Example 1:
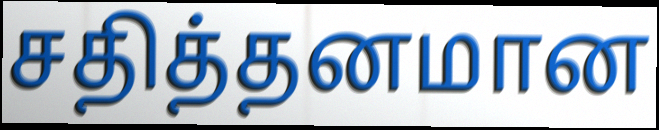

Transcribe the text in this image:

சதித்தனமான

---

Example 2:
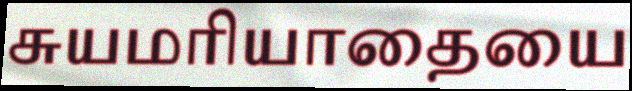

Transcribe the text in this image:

சுயமரியாதையை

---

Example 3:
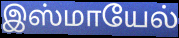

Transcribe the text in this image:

இஸ்மாயேல்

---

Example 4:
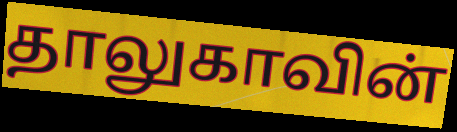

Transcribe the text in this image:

தாலுகாவின்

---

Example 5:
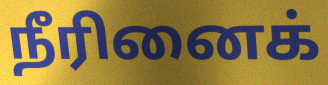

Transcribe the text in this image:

நீரினைக்